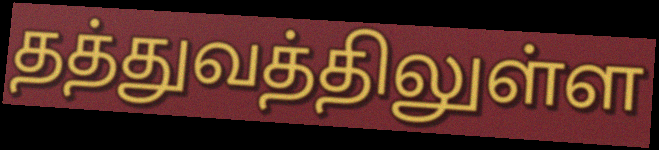
தத்துவத்திலுள்ள